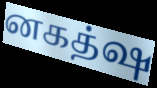
னகத்ஷ